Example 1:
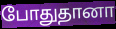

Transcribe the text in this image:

போதுதானா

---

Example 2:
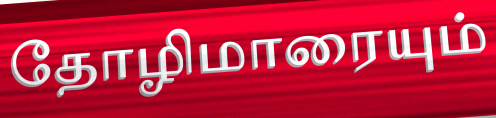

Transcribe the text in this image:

தோழிமாரையும்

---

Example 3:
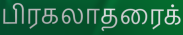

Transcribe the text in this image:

பிரகலாதரைக்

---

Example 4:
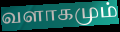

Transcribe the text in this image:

வளாகமும்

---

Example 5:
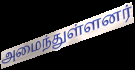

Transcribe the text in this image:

அமைந்துள்ளனர்